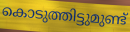
കൊടുത്തിട്ടുമുണ്ട്